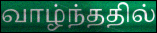
வாழ்ந்ததில்